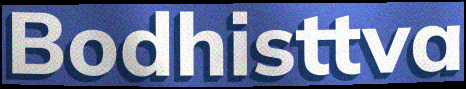
Bodhisttva